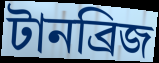
টানব্রিজ